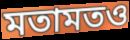
মতামতও